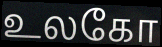
உலகோ